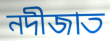
নদীজাত